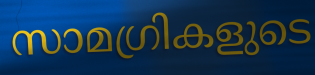
സാമഗ്രികളുടെ